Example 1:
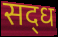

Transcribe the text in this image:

सद्ध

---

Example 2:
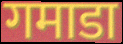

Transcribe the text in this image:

गमाडा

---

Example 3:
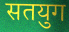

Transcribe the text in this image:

सतयुग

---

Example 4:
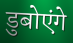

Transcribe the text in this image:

डुबोएंगे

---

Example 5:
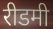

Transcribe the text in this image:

रीडमी